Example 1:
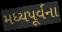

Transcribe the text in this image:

મધ્યપૂર્વના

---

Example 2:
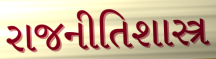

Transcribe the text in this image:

રાજનીતિશાસ્ત્ર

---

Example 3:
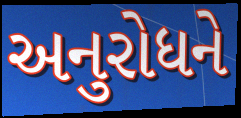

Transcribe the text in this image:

અનુરોધને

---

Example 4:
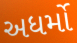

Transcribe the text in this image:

અધર્મો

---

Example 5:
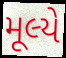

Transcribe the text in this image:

મૂલ્યે